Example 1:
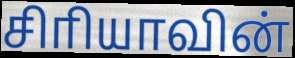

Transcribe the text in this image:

சிரியாவின்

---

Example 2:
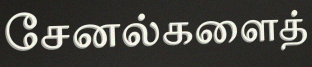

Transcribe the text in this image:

சேனல்களைத்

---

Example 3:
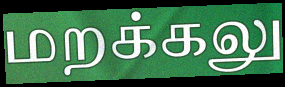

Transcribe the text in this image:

மறக்கலு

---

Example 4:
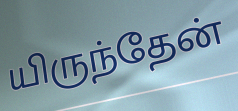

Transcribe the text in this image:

யிருந்தேன்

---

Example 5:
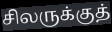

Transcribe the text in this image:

சிலருக்குத்